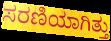
ಸರಣಿಯಾಗಿತ್ತು